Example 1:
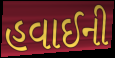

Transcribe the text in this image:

હવાઈની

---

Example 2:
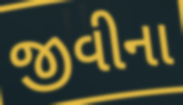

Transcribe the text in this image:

જીવીના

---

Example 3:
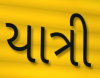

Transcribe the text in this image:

યાત્રી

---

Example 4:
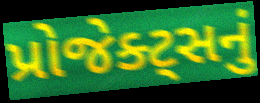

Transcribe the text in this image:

પ્રોજેક્ટ્સનું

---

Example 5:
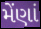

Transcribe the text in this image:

મેંણાં